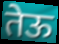
तेऊ